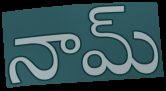
నామ్